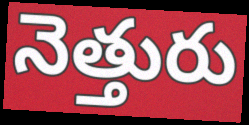
నెత్తురు